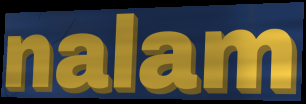
nalam